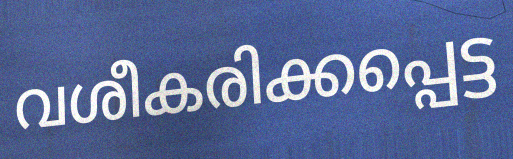
വശീകരിക്കപ്പെട്ട